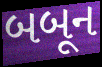
બબૂન